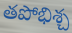
తపోభిశ్చ